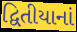
દ્વિતીયાનાં